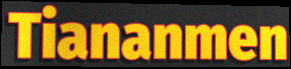
Tiananmen